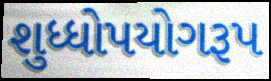
શુધ્ધોપયોગરૂપ